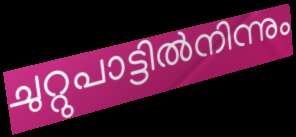
ചുറ്റുപാട്ടിൽനിന്നും